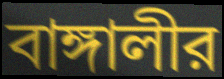
বাঙ্গালীর